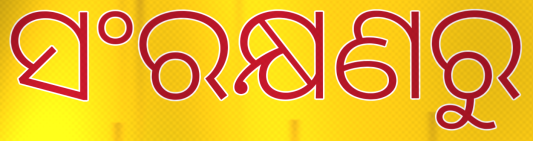
ସଂରକ୍ଷଣରୁ